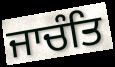
ਜਾਚੰਤਿ